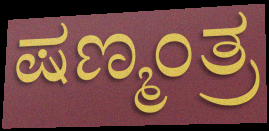
ಷಣ್ಮಂತ್ರ